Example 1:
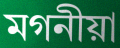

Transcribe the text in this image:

মগনীয়া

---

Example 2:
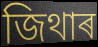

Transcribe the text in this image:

জিথাৰ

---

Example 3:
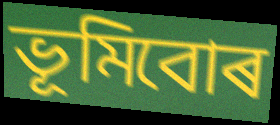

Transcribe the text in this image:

ভূমিবোৰ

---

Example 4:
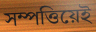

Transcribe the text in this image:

সম্পত্তিয়েই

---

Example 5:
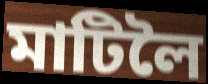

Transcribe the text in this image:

মাটিলৈ